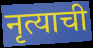
नृत्याची